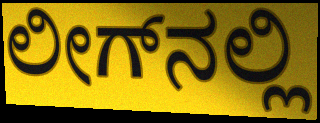
ಲೀಗ್‌ನಲ್ಲಿ